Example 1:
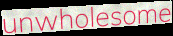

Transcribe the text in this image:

unwholesome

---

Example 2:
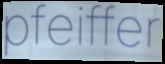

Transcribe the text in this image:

pfeiffer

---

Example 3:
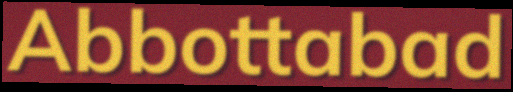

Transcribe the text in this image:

Abbottabad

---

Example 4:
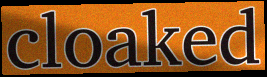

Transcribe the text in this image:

cloaked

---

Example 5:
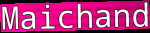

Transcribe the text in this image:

Maichand